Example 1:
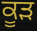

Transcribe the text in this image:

ਕੂੜ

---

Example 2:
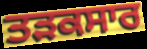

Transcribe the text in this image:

ਤੜਕਸਾਰ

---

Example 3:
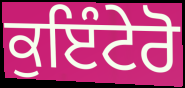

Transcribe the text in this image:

ਕੁਇੰਟੇਰੋ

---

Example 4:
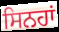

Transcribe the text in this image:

ਸਿਨਹਾਂ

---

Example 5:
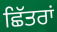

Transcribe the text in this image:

ਛਿੱਤਰਾਂ